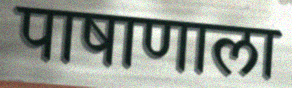
पाषाणाला